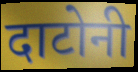
दाटोनी